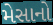
મેસાનો